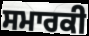
ਸਮਾਰਕੀ